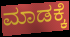
ಮಾಡಕ್ಕೆ